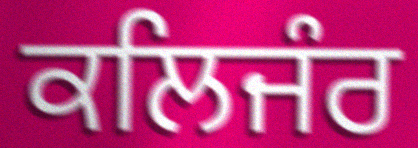
ਕਲਿਜੰਰ